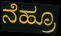
ನೆಹ್ರೂ